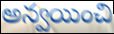
అన్వయించి